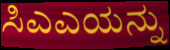
ಸಿಎಎಯನ್ನು